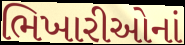
ભિખારીઓનાં